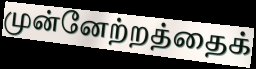
முன்னேற்றத்தைக்